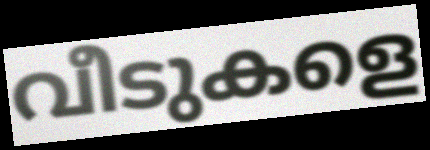
വീടുകളെ